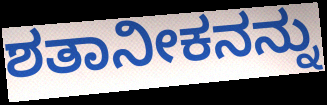
ಶತಾನೀಕನನ್ನು